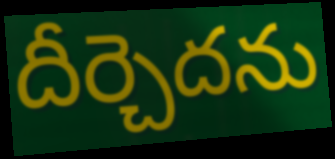
దీర్చెదను